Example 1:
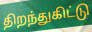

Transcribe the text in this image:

திறந்துகிட்டு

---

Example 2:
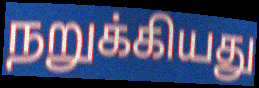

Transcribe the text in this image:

நறுக்கியது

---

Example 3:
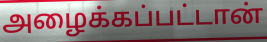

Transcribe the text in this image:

அழைக்கப்பட்டான்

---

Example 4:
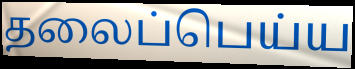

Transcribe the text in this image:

தலைப்பெய்ய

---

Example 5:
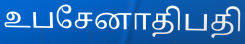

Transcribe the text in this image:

உபசேனாதிபதி